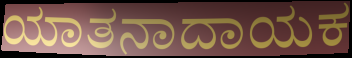
ಯಾತನಾದಾಯಕ